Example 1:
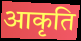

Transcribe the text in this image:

आकृति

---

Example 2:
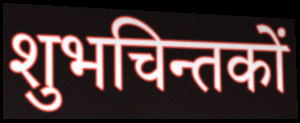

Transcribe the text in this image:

शुभचिन्तकों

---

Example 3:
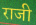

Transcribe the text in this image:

राजी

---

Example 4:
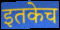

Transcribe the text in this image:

इतकेच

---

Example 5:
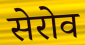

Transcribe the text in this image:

सेरोव